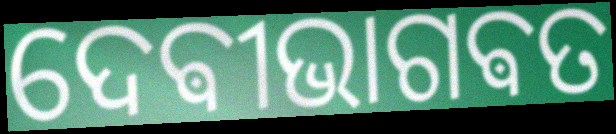
ଦେଵୀଭାଗଵତ